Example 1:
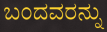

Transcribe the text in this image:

ಬಂದವರನ್ನು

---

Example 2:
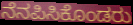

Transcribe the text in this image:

ನೆನಪಿಸಿಕೊಂಡರು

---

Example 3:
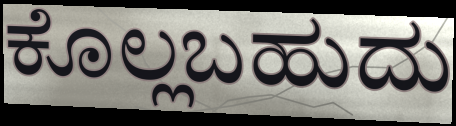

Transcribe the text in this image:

ಕೊಲ್ಲಬಹುದು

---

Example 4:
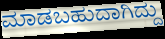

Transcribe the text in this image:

ಮಾಡಬಹುದಾಗಿದ್ದು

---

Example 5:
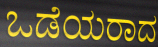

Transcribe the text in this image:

ಒಡೆಯರಾದ